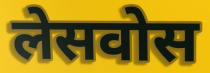
लेसवोस